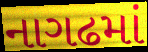
નાગઢમાં